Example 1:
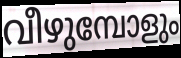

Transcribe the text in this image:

വീഴുമ്പോളും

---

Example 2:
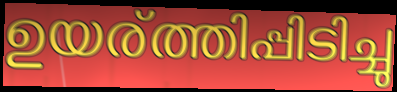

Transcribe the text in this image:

ഉയര്ത്തിപ്പിടിച്ചു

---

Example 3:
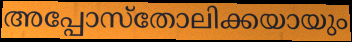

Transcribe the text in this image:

അപ്പോസ്തോലിക്കയായും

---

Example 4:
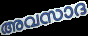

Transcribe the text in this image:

അവസാദ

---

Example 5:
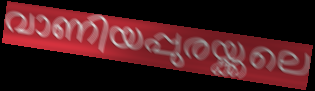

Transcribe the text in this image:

വാണിയപ്പുരയ്ക്കലെ